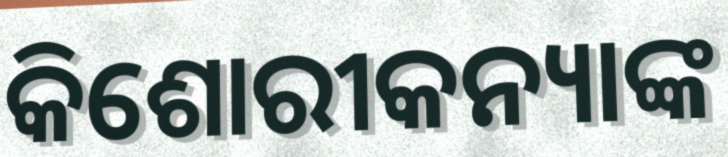
କିଶୋରୀକନ୍ୟାଙ୍କ